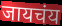
जायचंय